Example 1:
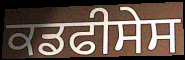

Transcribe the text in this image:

ਕਡਫੀਸੇਸ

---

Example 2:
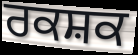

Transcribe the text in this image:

ਰਕਸ਼ਕ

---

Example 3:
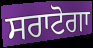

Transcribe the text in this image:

ਸਰਾਟੋਗਾ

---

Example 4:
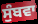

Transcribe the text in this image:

ਸੁੰਬਵਾ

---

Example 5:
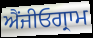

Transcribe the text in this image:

ਐਂਜੀਓਗ੍ਰਾਮ